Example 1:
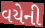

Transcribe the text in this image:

વયેની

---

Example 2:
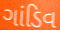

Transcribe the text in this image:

ગાંડિવ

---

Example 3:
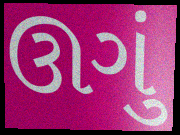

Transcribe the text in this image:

ઊગું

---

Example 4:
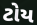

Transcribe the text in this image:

ટોય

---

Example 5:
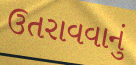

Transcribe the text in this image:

ઉતરાવવાનું